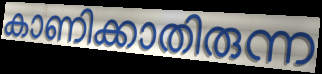
കാണിക്കാതിരുന്ന